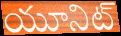
యూనిట్